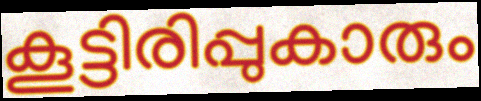
കൂട്ടിരിപ്പുകാരും